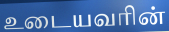
உடையவரின்